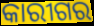
କାରୀଗର